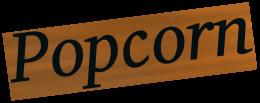
Popcorn